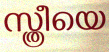
സ്ത്രീയെ